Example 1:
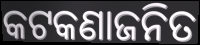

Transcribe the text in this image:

କଟକଣାଜନିତ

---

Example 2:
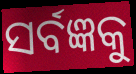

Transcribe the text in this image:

ସର୍ବଜ୍ଞକୁ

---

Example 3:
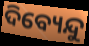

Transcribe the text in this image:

ଦିବ୍ୟେନ୍ଦୁ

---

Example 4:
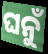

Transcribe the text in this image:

ଘନୁଁ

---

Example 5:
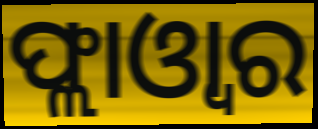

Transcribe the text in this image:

ଫ୍ଲାଓ୍ବାର